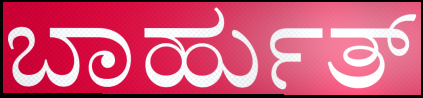
ಬಾರ್ಹುತ್